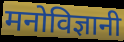
मनोविज्ञानी